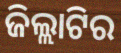
ଜିଲ୍ଲାଟିର